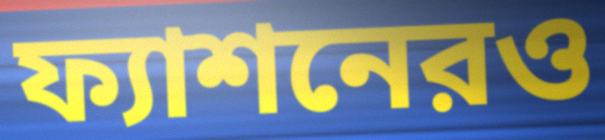
ফ্যাশনেরও